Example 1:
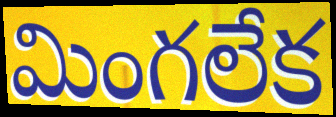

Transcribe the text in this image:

మింగలేక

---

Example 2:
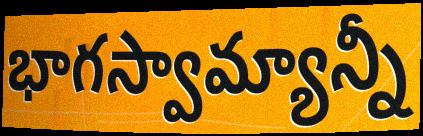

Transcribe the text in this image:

భాగస్వామ్యాన్నీ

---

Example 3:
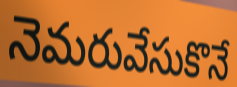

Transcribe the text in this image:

నెమరువేసుకొనే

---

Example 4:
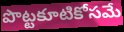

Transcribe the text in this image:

పొట్టకూటికోసమే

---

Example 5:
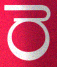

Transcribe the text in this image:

రె